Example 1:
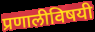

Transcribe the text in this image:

प्रणालीविषयी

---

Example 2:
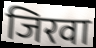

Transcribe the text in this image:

जिरवा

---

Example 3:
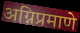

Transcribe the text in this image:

अग्निप्रमाणे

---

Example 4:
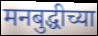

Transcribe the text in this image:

मनबुद्धीच्या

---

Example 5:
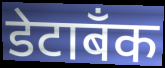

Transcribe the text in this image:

डेटाबँक